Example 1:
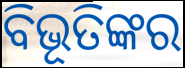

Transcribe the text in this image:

ବିଭୂତିଙ୍କର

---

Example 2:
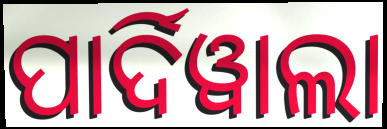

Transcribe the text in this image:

ପାର୍ଦିୱାଲା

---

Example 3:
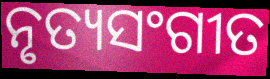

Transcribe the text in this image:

ନୃତ୍ୟସଂଗୀତ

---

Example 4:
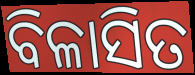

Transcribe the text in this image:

ବିଳାସିତ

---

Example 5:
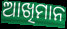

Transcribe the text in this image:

ଆଖିମାନ